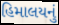
હિમાલયનું